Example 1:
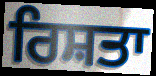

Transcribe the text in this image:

ਰਿਸ਼ਤਾ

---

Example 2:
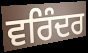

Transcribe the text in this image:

ਵਰਿੰਦਰ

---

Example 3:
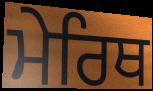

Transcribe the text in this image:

ਮੇਰਿਥ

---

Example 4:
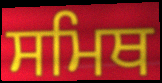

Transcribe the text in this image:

ਸਮਿਥ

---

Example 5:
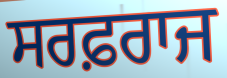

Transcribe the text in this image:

ਸਰਫ਼ਰਾਜ